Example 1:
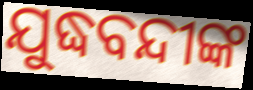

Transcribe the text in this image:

ଯୁଦ୍ଧବନ୍ଦୀଙ୍କ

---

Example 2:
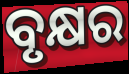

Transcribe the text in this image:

ବୃକ୍ଷର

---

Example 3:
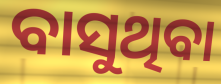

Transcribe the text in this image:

ବାସୁଥିବା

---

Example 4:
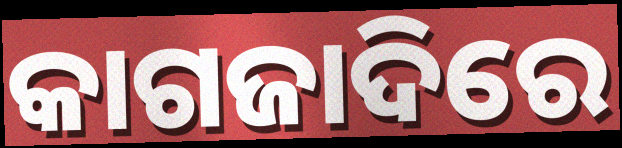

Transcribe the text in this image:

କାଗଜାଦିରେ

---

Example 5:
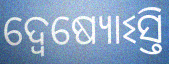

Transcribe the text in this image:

ଦ୍ୱେଷ୍ୟୋଽସ୍ତି